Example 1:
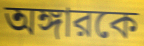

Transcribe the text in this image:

অঙ্গারকে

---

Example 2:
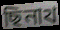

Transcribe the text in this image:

ছিনাথ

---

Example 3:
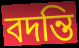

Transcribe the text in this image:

বদন্তি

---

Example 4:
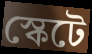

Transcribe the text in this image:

স্কেটে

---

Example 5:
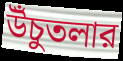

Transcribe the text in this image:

উঁচুতলার